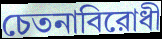
চেতনাবিরোধী